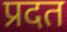
प्रदत